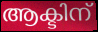
ആക്ടിന്